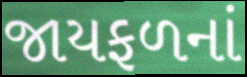
જાયફળનાં